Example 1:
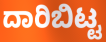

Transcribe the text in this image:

ದಾರಿಬಿಟ್ಟ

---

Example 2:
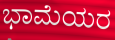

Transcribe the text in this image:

ಭಾಮೆಯರ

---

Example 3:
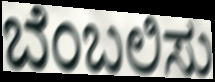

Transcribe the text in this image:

ಬೆಂಬಲಿಸು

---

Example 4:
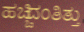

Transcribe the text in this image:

ಹಚ್ಚಿದಂತಿತ್ತು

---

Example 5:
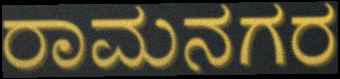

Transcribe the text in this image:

ರಾಮನಗರ